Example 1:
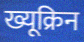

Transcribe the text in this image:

ख्यूक्रिन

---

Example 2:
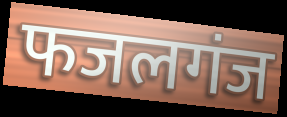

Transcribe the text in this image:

फजलगंज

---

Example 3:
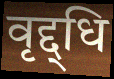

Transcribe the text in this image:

वृद्द्धि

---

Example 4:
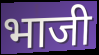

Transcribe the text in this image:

भाजी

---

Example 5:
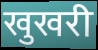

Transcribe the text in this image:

खुखरी